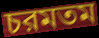
চরমতম